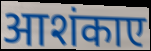
आशंकाए